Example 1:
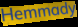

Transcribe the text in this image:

Hemmady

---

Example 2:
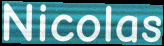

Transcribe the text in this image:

Nicolas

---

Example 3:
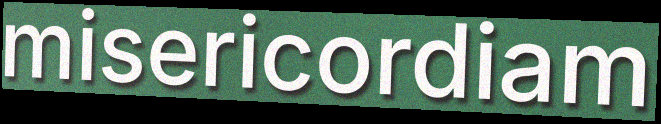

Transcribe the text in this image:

misericordiam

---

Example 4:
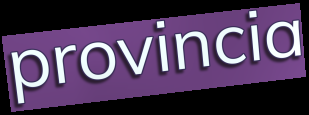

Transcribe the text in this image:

provincia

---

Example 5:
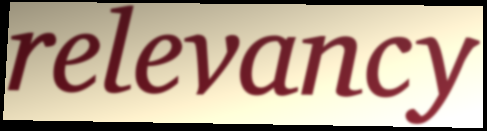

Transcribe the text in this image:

relevancy